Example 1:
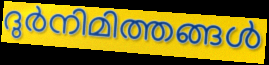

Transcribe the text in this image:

ദുർനിമിത്തങ്ങൾ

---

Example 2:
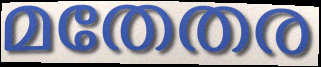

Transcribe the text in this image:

മതേതര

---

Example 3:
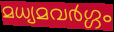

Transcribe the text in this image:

മധ്യമവർഗ്ഗം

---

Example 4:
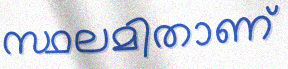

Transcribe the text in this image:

സ്ഥലമിതാണ്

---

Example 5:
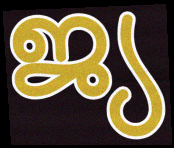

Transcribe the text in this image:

ജ്യ